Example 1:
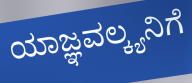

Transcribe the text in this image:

ಯಾಜ್ಞವಲ್ಕ್ಯನಿಗೆ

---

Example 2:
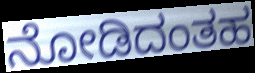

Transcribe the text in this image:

ನೋಡಿದಂತಹ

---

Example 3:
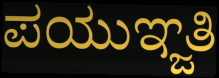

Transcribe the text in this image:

ಪಯುಞ್ಜತಿ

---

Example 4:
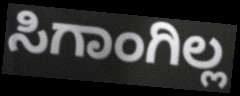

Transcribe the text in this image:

ಸಿಗಾಂಗಿಲ್ಲ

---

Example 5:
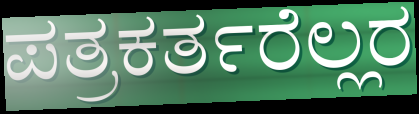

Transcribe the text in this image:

ಪತ್ರಕರ್ತರೆಲ್ಲರ